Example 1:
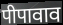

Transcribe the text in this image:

पीपावाव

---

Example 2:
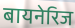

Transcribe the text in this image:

बायनेरिज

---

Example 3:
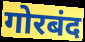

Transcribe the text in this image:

गोरबंद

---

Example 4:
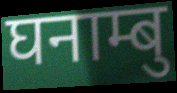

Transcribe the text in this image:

घनाम्बु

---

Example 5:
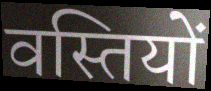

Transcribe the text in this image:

वस्तियों